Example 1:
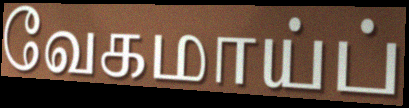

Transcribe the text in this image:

வேகமாய்ப்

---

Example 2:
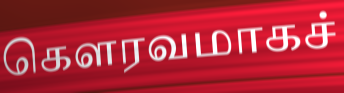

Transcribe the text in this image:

கௌரவமாகச்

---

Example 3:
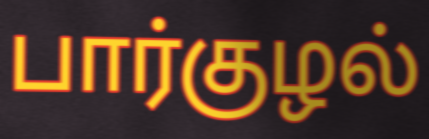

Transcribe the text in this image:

பார்குழல்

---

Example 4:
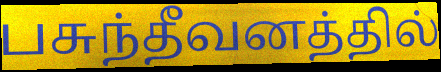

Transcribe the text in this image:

பசுந்தீவனத்தில்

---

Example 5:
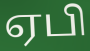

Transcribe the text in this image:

ஏபி